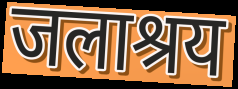
जलाश्रय